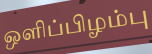
ஒளிப்பிழம்பு